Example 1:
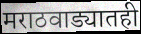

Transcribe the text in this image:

मराठवाड्यातही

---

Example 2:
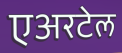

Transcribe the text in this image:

एअरटेल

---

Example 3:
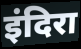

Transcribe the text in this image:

इंदिरा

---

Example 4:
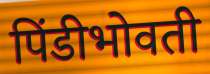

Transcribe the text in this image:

पिंडीभोवती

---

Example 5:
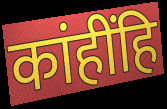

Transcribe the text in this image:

कांहींहि